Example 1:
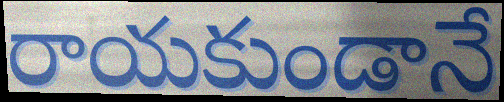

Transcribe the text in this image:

రాయకుండానే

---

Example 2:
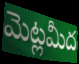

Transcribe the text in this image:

మెట్లమీద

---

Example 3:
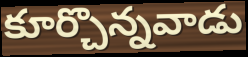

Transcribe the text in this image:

కూర్చొన్నవాడు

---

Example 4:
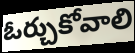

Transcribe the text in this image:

ఓర్చుకోవాలి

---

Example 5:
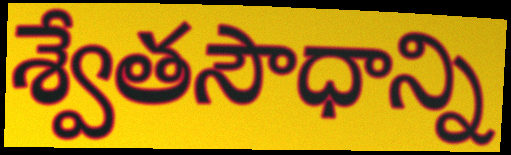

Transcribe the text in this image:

శ్వేతసౌధాన్ని